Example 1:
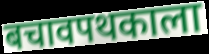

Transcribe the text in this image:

बचावपथकाला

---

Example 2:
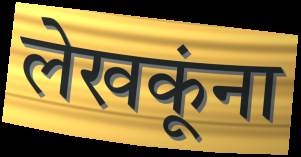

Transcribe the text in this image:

लेखकूंना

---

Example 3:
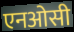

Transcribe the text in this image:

एनओसी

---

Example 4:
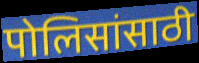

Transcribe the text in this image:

पोलिसांसाठी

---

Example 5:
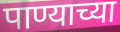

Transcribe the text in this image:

पाण्याच्या